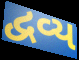
દ્વવ્ય